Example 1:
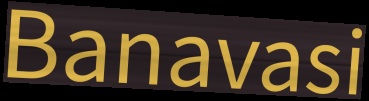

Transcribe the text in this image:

Banavasi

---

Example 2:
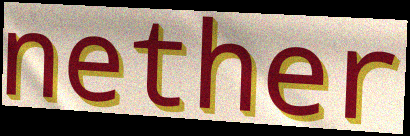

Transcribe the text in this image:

nether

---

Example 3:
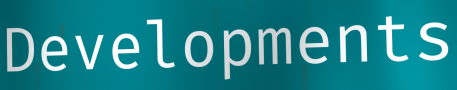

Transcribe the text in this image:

Developments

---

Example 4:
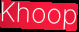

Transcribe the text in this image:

Khoop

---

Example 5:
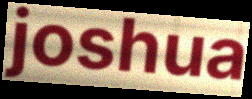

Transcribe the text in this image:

joshua